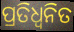
ପ୍ରତିଧ୍ଵନିତ